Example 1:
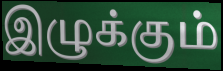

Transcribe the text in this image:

இழுக்கும்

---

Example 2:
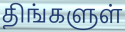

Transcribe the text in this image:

திங்களுள்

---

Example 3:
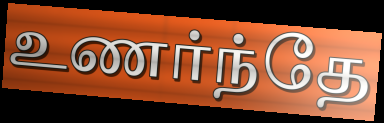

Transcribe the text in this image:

உணர்ந்தே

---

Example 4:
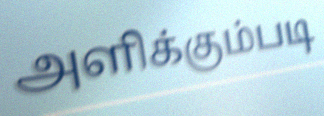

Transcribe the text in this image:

அளிக்கும்படி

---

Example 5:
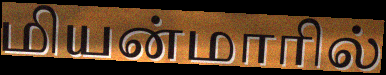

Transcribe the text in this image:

மியன்மாரில்